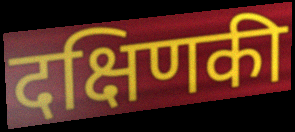
दक्षिणकी